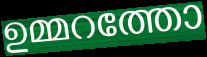
ഉമ്മറത്തോ